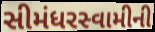
સીમંધરસ્વામીની